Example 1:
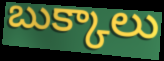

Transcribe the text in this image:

బుక్కాలు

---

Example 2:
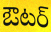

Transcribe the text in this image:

ఔటర్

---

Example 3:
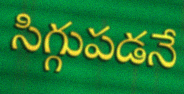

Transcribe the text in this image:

సిగ్గుపడనే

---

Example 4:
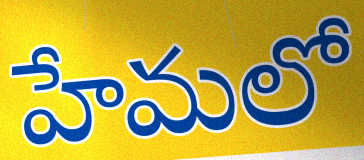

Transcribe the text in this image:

హేమలో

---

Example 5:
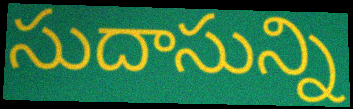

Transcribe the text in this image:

సుదాసున్ని